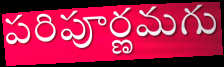
పరిపూర్ణమగు